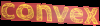
convex